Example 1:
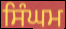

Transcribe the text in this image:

ਸਿੰਘਮ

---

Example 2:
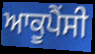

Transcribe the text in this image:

ਆਕੂਪੈਂਸੀ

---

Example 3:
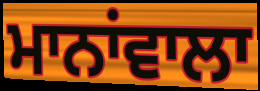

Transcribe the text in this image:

ਮਾਨਾਂਵਾਲਾ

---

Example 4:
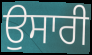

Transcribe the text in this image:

ਉਸਾਰੀ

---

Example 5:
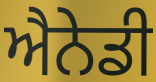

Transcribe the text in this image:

ਐਨੇਡੀ